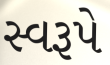
સ્વરૂપે